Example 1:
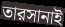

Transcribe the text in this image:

তারসানাই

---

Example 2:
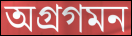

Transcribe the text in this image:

অগ্রগমন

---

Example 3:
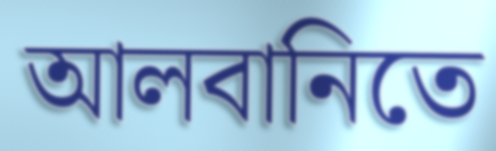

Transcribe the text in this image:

আলবানিতে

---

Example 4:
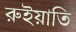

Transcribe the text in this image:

রুইয়াতি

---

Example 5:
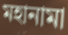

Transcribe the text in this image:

মহানামা